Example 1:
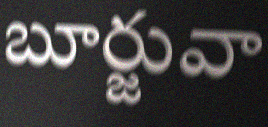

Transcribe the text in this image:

బూర్జువా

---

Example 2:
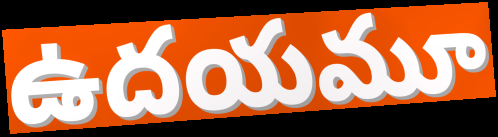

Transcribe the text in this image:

ఉదయమూ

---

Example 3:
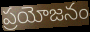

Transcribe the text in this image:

ప్రయోజనం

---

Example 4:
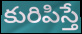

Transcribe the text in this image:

కురిపిస్తే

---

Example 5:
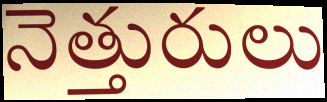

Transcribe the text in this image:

నెత్తురులు